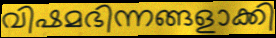
വിഷമഭിന്നങ്ങളാക്കി